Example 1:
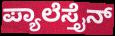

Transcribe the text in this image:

ಪ್ಯಾಲೆಸ್ತೈನ್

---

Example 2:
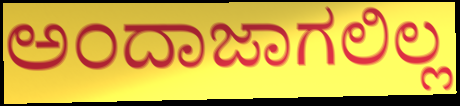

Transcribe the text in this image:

ಅಂದಾಜಾಗಲಿಲ್ಲ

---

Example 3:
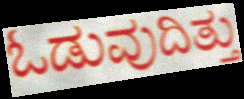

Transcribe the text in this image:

ಓಡುವುದಿತ್ತು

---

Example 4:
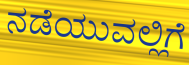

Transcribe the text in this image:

ನಡೆಯುವಲ್ಲಿಗೆ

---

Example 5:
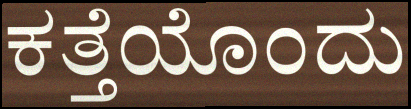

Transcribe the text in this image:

ಕತ್ತೆಯೊಂದು